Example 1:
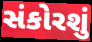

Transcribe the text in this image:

સંકોરશું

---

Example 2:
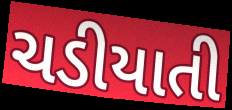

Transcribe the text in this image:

ચડીયાતી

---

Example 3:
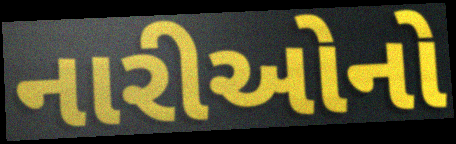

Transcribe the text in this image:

નારીઓનો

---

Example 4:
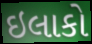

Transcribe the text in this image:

ઇલાકો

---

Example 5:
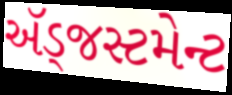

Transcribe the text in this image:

ઍડ્જસ્ટમેન્ટ